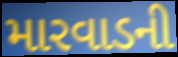
મારવાડની